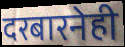
दरबारनेही